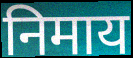
निमाय